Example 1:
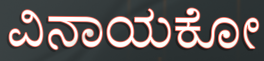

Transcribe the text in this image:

ವಿನಾಯಕೋ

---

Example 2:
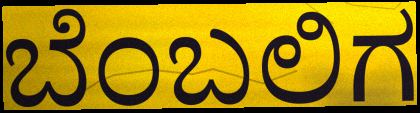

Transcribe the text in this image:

ಬೆಂಬಲಿಗ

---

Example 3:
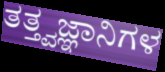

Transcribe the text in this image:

ತತ್ತ್ವಜ್ಞಾನಿಗಳ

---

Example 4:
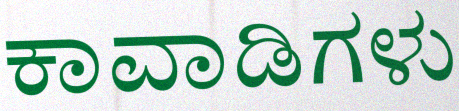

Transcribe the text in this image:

ಕಾವಾಡಿಗಳು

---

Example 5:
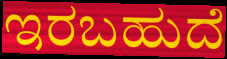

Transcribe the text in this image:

ಇರಬಹುದೆ